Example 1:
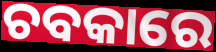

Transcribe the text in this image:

ଚବକାରେ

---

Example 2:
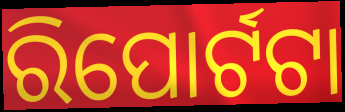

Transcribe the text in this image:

ରିପୋର୍ଟଟା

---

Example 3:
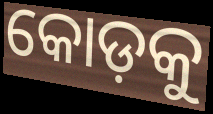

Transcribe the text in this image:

କୋଡ଼କୁ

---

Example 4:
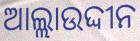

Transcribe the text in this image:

ଆଲ୍ଲାଉଦ୍ଦୀନ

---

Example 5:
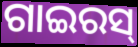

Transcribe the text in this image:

ଗାଇରସ୍